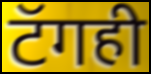
टॅगही